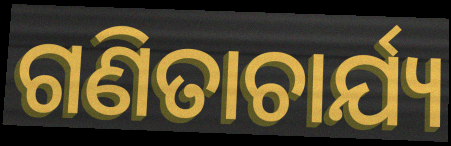
ଗଣିତାଚାର୍ଯ୍ୟ